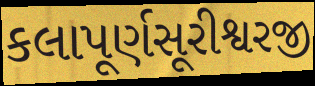
કલાપૂર્ણસૂરીશ્વરજી